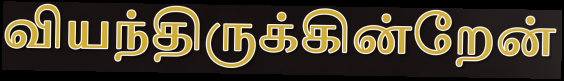
வியந்திருக்கின்றேன்